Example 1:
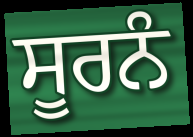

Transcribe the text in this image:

ਸੂਰਨੰ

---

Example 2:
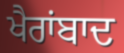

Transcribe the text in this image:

ਖੈਰਾਂਬਾਦ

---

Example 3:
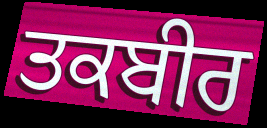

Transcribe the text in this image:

ਤਕਬੀਰ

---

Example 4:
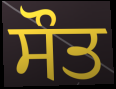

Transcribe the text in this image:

ਸੌਤ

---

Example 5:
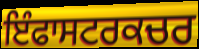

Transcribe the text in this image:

ਇੰਫਾਸਟਰਕਚਰ